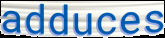
adduces